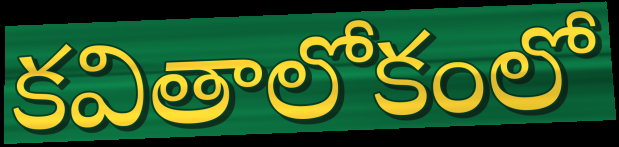
కవితాలోకంలో